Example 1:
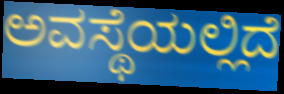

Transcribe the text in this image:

ಅವಸ್ಥೆಯಲ್ಲಿದೆ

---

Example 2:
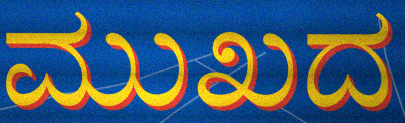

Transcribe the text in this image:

ಮುಖದ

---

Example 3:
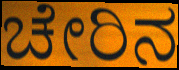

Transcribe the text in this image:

ಚೇರಿನ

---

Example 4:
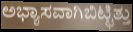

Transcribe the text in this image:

ಅಭ್ಯಾಸವಾಗಿಬಿಟ್ಟಿತ್ತು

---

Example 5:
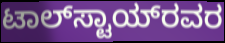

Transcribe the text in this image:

ಟಾಲ್‌ಸ್ಟಾಯ್‌ರವರ